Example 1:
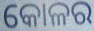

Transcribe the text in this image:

କୋଳର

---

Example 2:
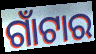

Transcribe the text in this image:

ଗାଁଟାର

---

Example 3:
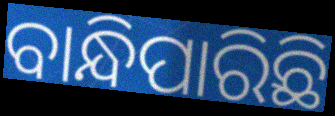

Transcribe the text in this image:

ବାନ୍ଧିପାରିଛି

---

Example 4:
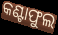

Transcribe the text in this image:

କଣ୍ଟାଫୁଲ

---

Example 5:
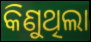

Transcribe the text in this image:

କିଣୁଥିଲା